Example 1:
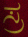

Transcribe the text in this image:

ಸ್ರ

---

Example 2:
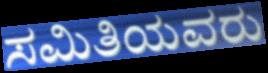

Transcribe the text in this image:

ಸಮಿತಿಯವರು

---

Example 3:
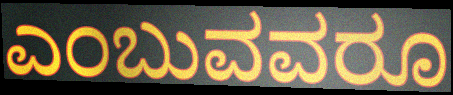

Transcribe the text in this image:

ಎಂಬುವವರೂ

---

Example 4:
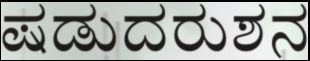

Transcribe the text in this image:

ಷಡುದರುಶನ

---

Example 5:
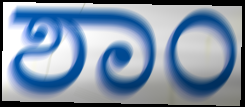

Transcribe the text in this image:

ಶಾಂ